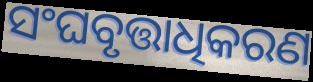
ସଂଘବୃତ୍ତାଧିକରଣ